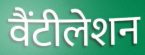
वैंटीलेशन